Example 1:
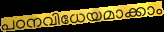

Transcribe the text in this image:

പഠനവിധേയമാക്കാം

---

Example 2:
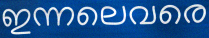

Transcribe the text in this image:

ഇന്നലെവരെ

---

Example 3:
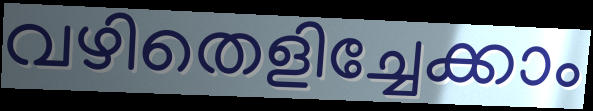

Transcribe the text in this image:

വഴിതെളിച്ചേക്കാം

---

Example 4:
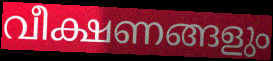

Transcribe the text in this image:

വീക്ഷണങ്ങളും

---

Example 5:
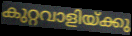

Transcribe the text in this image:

കുറ്റവാളിയ്ക്കു